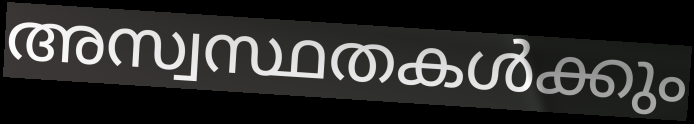
അസ്വസ്ഥതകൾക്കും